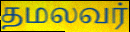
தமலவர்